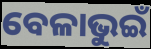
ବେଳାଭୁଇଁ